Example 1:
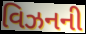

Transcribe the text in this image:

વિઝનની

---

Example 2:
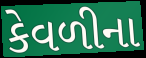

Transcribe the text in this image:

કેવળીના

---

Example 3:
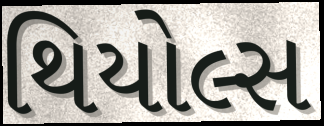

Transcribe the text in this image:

થિયોલ્સ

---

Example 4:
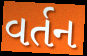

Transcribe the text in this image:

વર્તન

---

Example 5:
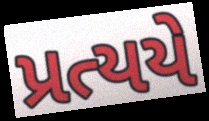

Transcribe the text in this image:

પ્રત્યયે